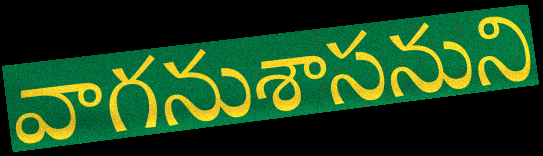
వాగనుశాసనుని